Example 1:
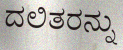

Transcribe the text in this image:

ದಲಿತರನ್ನು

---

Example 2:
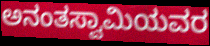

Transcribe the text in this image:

ಅನಂತಸ್ವಾಮಿಯವರ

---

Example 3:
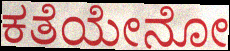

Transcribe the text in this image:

ಕತೆಯೇನೋ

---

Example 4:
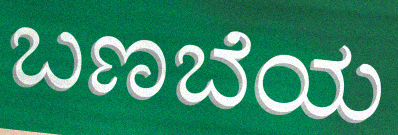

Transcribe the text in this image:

ಬಣಬೆಯ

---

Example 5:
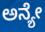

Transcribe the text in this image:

ಅನ್ಯೇ